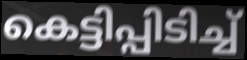
കെട്ടിപ്പിടിച്ച്